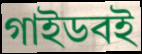
গাইডবই